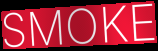
SMOKE